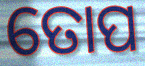
ତୋପ